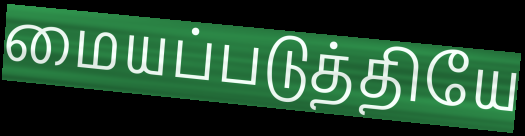
மையப்படுத்தியே